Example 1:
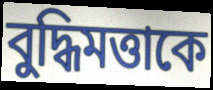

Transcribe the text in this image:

বুদ্ধিমত্তাকে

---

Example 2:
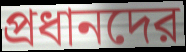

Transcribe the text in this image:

প্রধানদের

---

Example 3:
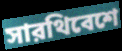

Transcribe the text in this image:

সারথিবেশে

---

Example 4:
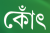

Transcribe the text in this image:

কোঁৎ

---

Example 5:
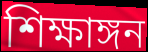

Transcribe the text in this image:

শিক্ষাঙ্গন